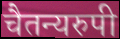
चैतन्यरुपी